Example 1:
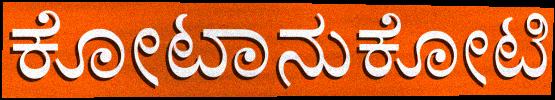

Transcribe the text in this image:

ಕೋಟಾನುಕೋಟಿ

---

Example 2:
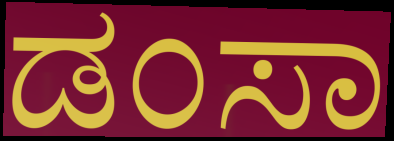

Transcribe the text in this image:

ಡಂಸಾ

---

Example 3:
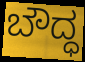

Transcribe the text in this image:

ಬೌದ್ಧ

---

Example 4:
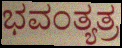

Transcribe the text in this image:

ಭವಂತ್ಯತ್ರ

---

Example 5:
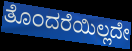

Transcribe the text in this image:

ತೊಂದರೆಯಿಲ್ಲದೇ